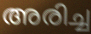
അരിച്ച